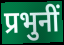
प्रभुनीं